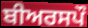
ਬੀਅਰਸਪੌ